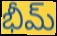
భీమ్